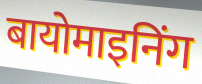
बायोमाइनिंग